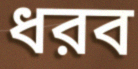
ধরব